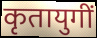
कृतायुगीं